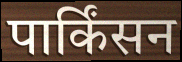
पार्किंसन